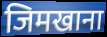
जिमखाना